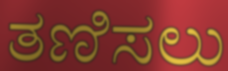
ತಣಿಸಲು